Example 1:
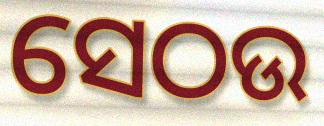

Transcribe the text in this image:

ସେଠଉ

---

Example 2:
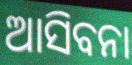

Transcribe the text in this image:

ଆସିବନା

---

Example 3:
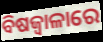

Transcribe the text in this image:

ବିଷଜ୍ୱାଳାରେ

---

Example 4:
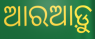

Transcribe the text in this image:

ଆରଆଡ଼ୁ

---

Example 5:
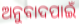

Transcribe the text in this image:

ଅନୁବାଦପାଇଁ